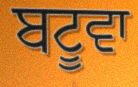
ਬਟੂਵਾ